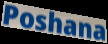
Poshana